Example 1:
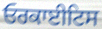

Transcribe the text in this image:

ਓਰਕਾਈਟਿਸ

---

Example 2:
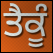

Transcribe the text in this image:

ਤੈਕੂੰ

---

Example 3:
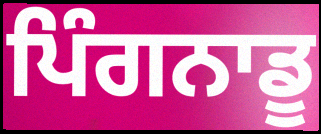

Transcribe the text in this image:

ਪਿੰਗਨਾਡੂ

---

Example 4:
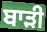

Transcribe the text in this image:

ਬਾੜੀ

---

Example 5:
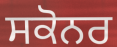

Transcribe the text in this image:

ਸਕੋਨਰ